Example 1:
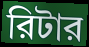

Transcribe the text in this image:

রিটার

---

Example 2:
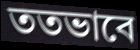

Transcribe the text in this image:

ততভাবে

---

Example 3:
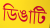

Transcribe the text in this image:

ডিঙাটি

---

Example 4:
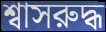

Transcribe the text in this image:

শ্বাসরুদ্ধ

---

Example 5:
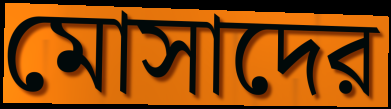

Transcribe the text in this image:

মোসাদের